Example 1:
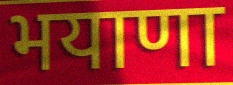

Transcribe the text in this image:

भयाणा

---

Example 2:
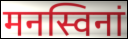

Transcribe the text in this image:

मनस्विनां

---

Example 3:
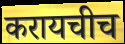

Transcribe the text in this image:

करायचीच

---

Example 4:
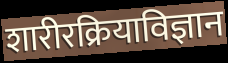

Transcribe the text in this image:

शारीरक्रियाविज्ञान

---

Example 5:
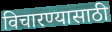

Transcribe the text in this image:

विचारण्यासाठी